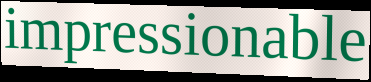
impressionable